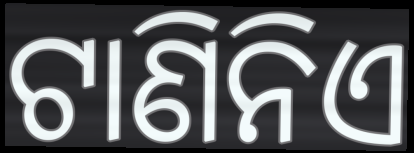
ଟାଣିନିଏ